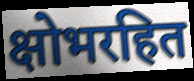
क्षोभरहित